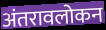
अंतरावलोकन